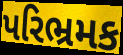
પરિભ્રમક